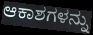
ಆಕಾಶಗಳನ್ನು